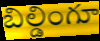
బిల్డింగూ